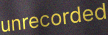
unrecorded